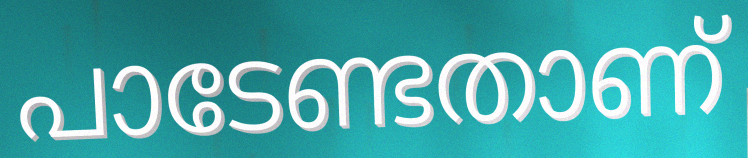
പാടേണ്ടതാണ്